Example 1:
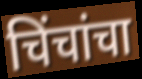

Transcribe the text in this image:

चिंचांचा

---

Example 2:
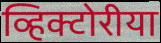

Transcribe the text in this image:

व्हिक्टोरीया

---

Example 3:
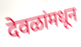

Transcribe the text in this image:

देवळांमधून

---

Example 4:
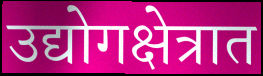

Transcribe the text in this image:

उद्योगक्षेत्रात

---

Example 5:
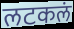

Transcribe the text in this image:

लटकलं